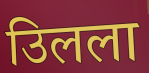
उिलला